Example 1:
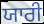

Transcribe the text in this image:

ਯਾਰੀ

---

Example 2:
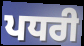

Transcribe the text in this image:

ਪਧਰੀ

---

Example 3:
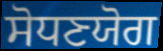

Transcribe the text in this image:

ਸੋਧਣਯੋਗ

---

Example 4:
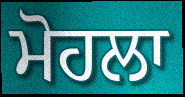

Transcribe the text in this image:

ਮੋਹਲਾ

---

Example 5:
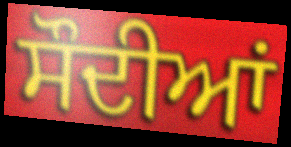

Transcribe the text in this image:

ਸੌਦੀਆਂ